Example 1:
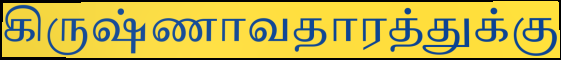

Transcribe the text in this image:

கிருஷ்ணாவதாரத்துக்கு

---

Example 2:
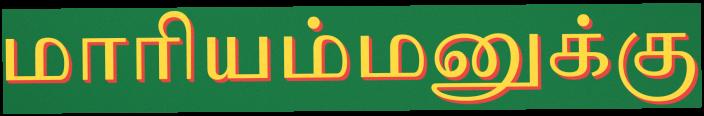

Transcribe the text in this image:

மாரியம்மனுக்கு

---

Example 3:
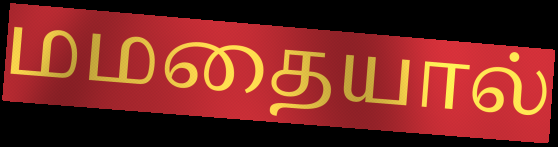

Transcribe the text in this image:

மமதையால்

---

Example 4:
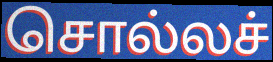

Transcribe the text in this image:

சொல்லச்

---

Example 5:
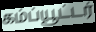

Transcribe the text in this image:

கம்ப்யூட்டர்